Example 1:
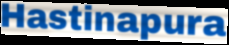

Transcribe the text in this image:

Hastinapura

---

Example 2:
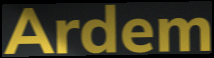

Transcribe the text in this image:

Ardem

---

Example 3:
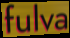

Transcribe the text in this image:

fulva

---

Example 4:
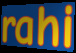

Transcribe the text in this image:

rahi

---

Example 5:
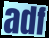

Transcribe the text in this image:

adf